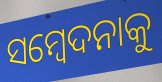
ସମ୍ବେଦନାକୁ